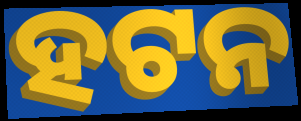
ହଟନ